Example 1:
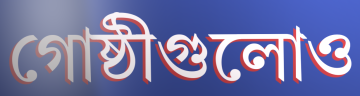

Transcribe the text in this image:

গোষ্ঠীগুলোও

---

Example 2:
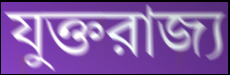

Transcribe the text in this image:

যুক্তরাজ্য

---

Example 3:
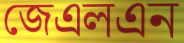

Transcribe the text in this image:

জেএলএন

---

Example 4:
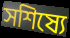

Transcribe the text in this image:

সশিষ্যে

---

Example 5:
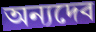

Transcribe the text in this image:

অন্যদেব